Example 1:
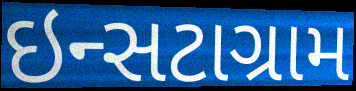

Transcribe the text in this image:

ઇન્સટાગ્રામ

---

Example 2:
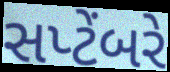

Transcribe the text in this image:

સપ્ટેંબરે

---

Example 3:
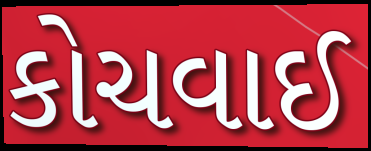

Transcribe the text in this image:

કોચવાઈ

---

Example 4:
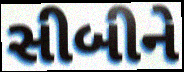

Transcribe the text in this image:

સીબીને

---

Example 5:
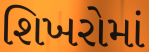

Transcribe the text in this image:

શિખરોમાં